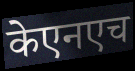
केएनएच